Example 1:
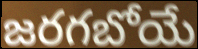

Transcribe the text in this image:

జరగబోయే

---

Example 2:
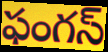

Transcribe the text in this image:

ఫంగస్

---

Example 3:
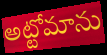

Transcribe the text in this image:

అట్టోమాను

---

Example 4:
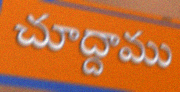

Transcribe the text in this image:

చూద్దాము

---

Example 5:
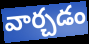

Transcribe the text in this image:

వార్చడం